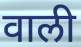
वाली